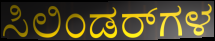
ಸಿಲಿಂಡರ್‌ಗಳ